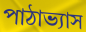
পাঠাভ্যাস